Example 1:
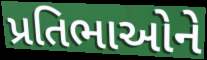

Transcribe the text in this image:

પ્રતિભાઓને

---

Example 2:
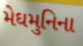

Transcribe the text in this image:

મેઘમુનિના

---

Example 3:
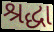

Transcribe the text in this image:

શ્રદ્ધા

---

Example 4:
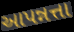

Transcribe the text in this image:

આપન્નત્તા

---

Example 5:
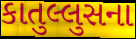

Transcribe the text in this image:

કાતુલ્લુસના